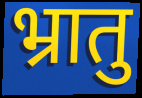
भ्रातु